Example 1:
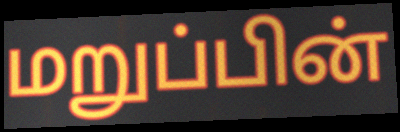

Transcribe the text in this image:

மறுப்பின்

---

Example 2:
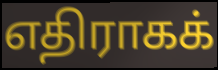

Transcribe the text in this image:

எதிராகக்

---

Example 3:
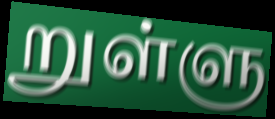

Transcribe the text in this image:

றுள்ளு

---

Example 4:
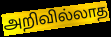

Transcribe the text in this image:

அறிவில்லாத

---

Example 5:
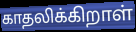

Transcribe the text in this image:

காதலிக்கிறாள்